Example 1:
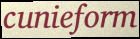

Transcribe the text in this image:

cunieform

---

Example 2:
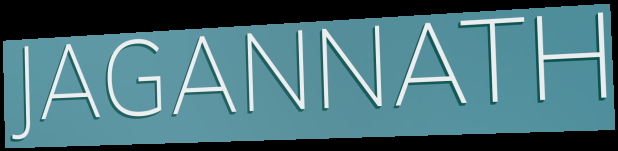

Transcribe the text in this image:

JAGANNATH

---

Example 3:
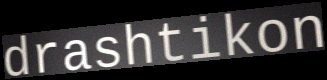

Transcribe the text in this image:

drashtikon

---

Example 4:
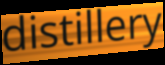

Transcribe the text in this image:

distillery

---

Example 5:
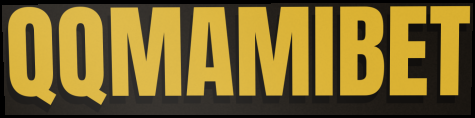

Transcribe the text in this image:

QQMAMIBET